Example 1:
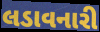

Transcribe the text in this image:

લડાવનારી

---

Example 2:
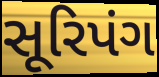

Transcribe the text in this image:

સૂરિપંગ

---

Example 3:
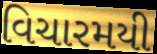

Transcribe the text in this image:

વિચારમયી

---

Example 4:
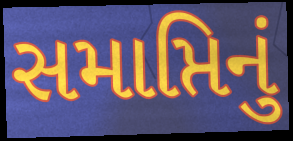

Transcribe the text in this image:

સમાપ્તિનું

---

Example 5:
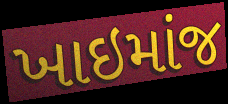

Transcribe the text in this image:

ખાઇમાંજ